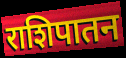
राशिपातन